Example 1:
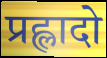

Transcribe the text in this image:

प्रह्लादो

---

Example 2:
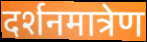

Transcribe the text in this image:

दर्शनमात्रेण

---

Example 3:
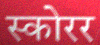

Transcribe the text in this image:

स्कोरर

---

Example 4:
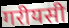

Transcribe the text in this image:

गरीयसी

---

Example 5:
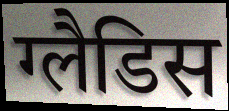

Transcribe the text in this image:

ग्लैडिस